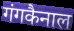
गंगकैनाल